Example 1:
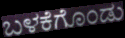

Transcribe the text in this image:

ಬಳಕೆಗೊಂಡು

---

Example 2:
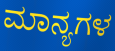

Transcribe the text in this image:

ಮಾನ್ಯಗಳ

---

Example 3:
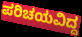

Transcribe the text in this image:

ಪರಿಚಯವಿದ್ದ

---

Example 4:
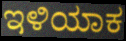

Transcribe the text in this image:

ಇಳಿಯಾಕ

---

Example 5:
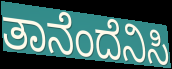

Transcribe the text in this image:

ತಾನೆಂದೆನಿಸಿ